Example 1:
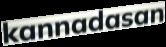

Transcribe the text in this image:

kannadasan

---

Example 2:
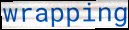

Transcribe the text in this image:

wrapping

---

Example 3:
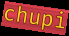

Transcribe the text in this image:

chupi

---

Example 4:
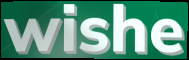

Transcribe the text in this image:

wishe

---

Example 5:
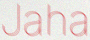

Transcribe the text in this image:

Jaha